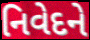
નિવેદને